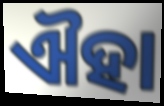
ଐହା